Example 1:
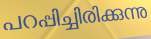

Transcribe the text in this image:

പറപ്പിച്ചിരിക്കുന്നു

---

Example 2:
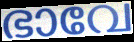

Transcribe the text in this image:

ഭാവേ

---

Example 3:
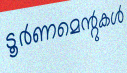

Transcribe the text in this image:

ടൂർണമെന്റുകൾ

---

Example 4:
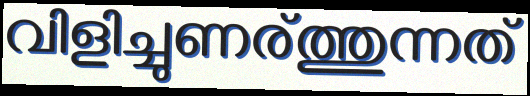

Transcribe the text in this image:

വിളിച്ചുണര്ത്തുന്നത്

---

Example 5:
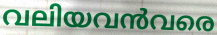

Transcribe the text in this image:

വലിയവൻവരെ